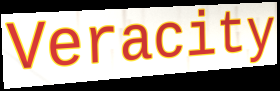
Veracity